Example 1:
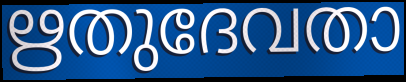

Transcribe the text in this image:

ഋതുദേവതാ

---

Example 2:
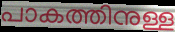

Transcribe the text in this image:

പാകത്തിനുള്ള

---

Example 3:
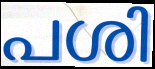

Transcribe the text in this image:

പശി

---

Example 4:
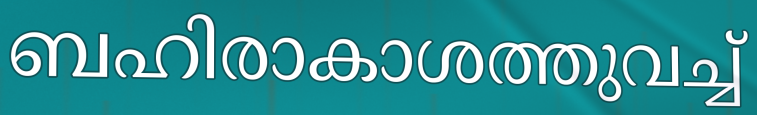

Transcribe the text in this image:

ബഹിരാകാശത്തുവച്ച്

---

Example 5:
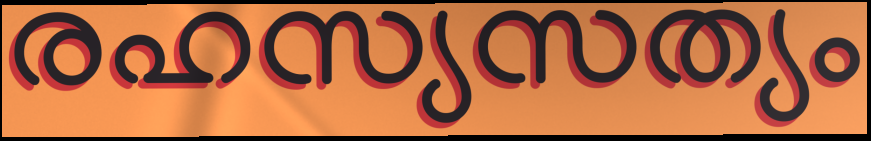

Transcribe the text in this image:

രഹസ്യസത്യം